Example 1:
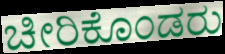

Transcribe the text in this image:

ಚೀರಿಕೊಂಡರು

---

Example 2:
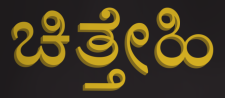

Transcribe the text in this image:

ಚಿತ್ತೇಹಿ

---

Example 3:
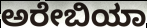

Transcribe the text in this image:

ಅರೇಬಿಯಾ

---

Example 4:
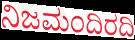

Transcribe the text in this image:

ನಿಜಮಂದಿರದಿ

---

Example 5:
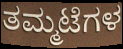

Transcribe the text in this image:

ತಮ್ಮಟೆಗಳ